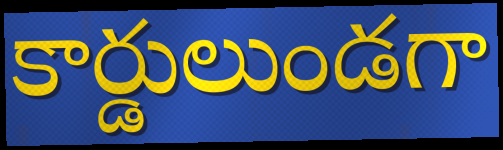
కార్డులుండగా